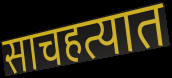
साचहत्यात